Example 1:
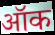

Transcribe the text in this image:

ऑक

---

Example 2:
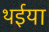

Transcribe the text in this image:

थईया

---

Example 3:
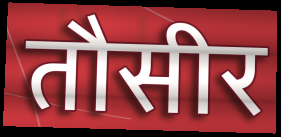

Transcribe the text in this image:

तौसीर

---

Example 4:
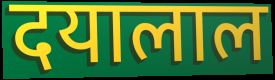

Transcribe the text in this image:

दयालाल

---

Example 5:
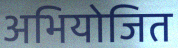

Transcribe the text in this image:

अभियोजित